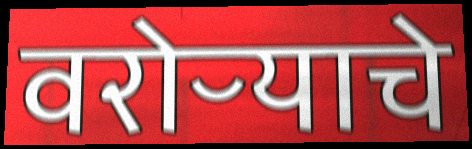
वरोऱ्याचे